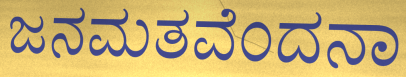
ಜನಮತವೆಂದನಾ